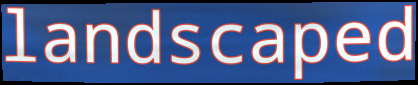
landscaped